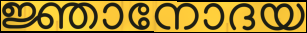
ജ്ഞാനോദയ